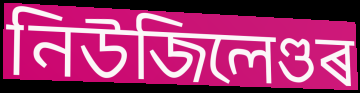
নিউজিলেণ্ডৰ